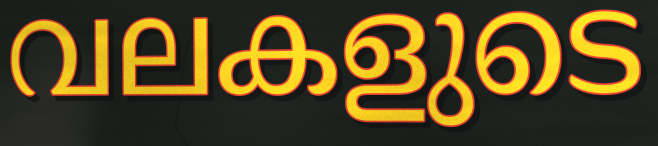
വലകളുടെ